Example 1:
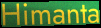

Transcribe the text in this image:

Himanta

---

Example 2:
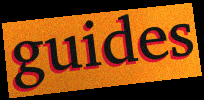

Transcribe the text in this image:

guides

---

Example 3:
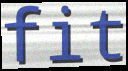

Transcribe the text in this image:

fit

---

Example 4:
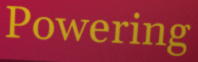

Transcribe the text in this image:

Powering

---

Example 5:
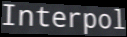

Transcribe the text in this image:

Interpol